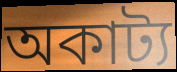
অকাট্য